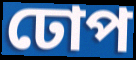
ঢোপ